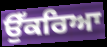
ਉੱਕਰਿਆ